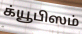
க்யூபிஸம்